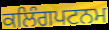
ਕਲਿੰਗਪਟਨਮ